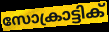
സോക്രാട്ടിക്